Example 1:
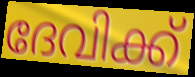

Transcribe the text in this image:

ദേവിക്ക്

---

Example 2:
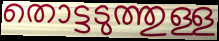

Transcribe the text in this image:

തൊട്ടടുത്തുള്ള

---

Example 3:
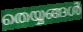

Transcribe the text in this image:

തെയ്യങ്ങൾ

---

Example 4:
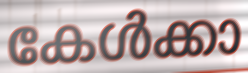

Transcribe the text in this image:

കേൾക്കാ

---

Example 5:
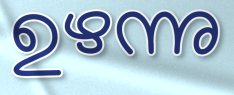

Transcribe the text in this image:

ഉഴന്നു